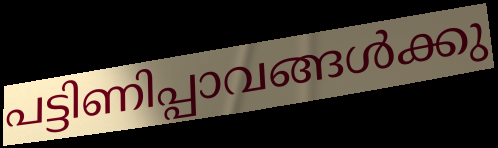
പട്ടിണിപ്പാവങ്ങൾക്കു